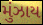
મુંઝાય